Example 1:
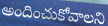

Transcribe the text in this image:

అందించుకోవాలని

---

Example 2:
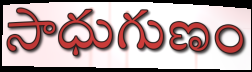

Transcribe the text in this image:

సాధుగుణం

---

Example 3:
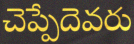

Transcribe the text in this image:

చెప్పేదెవరు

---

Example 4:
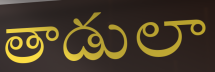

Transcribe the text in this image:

తాడులా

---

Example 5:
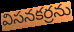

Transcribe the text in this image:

విసనకర్రను